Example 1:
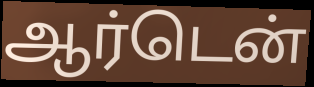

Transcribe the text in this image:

ஆர்டென்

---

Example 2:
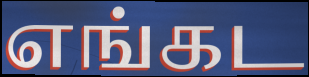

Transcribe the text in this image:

எங்கட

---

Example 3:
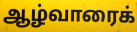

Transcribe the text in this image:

ஆழ்வாரைக்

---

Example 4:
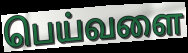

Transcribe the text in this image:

பெய்வளை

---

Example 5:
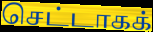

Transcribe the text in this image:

செட்டாகக்